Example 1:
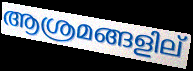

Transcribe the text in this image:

ആശ്രമങ്ങളില്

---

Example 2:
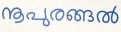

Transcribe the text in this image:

നൂപുരങ്ങൽ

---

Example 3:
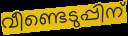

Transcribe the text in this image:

വീണ്ടെടുപ്പിന്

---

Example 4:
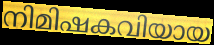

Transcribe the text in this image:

നിമിഷകവിയായ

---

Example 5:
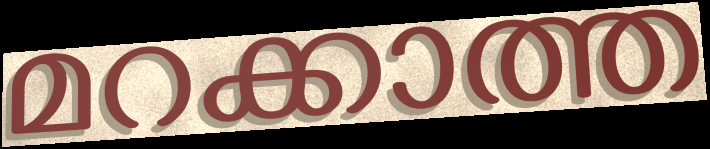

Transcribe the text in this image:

മറക്കാത്ത